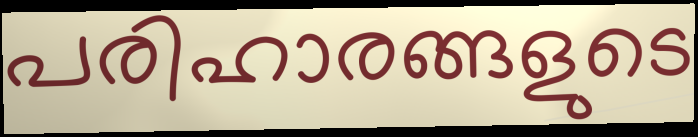
പരിഹാരങ്ങളുടെ